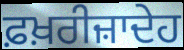
ਫ਼ਖ਼ਰੀਜ਼ਾਦੇਹ